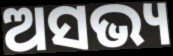
ଅସଭ୍ୟ